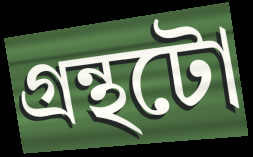
গ্ৰন্থটো